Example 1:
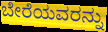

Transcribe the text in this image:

ಬೇರೆಯವರನ್ನು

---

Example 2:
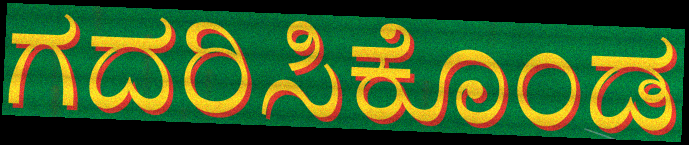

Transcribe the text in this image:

ಗದರಿಸಿಕೊಂಡ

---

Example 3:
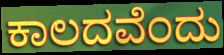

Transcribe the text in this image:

ಕಾಲದವೆಂದು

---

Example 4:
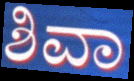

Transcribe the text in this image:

ಶಿವಾ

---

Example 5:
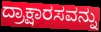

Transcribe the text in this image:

ದ್ರಾಕ್ಷಾರಸವನ್ನು